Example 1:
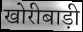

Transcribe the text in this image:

खोरीबाड़ी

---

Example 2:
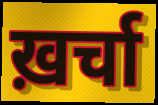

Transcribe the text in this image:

ख़र्चा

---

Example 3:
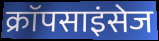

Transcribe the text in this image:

क्रॉपसाइंसेज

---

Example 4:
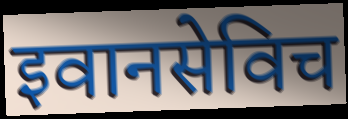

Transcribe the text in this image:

इवानसेविच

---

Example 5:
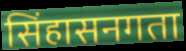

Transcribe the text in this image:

सिंहासनगता